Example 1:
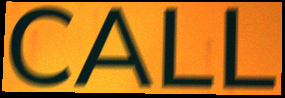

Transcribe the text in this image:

CALL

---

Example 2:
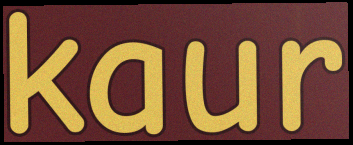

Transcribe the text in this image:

kaur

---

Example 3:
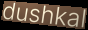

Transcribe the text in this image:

dushkal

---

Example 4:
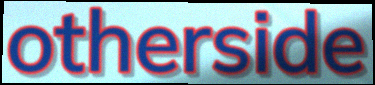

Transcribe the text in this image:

otherside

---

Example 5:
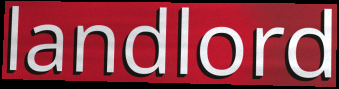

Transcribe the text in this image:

landlord